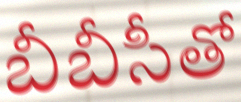
బీబీసీతో